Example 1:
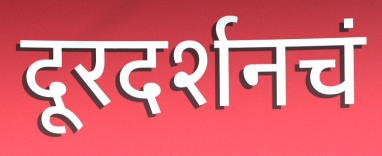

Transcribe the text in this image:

दूरदर्शनचं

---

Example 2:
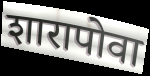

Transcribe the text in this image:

शारापोवा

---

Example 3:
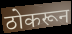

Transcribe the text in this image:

ठोकरून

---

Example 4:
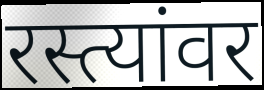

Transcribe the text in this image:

रस्त्यांवर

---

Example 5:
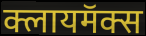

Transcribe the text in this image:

क्लायमॅक्स